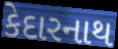
કેદારનાથ